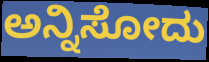
ಅನ್ನಿಸೋದು